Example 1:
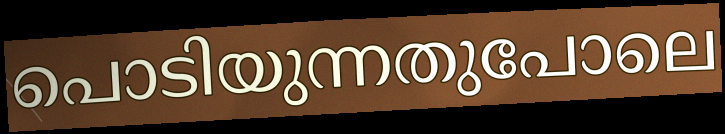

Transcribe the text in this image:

പൊടിയുന്നതുപോലെ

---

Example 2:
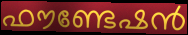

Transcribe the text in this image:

ഫൗണ്ടേഷൻ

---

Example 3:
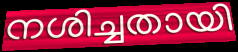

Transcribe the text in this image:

നശിച്ചതായി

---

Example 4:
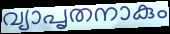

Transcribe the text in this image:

വ്യാപൃതനാകും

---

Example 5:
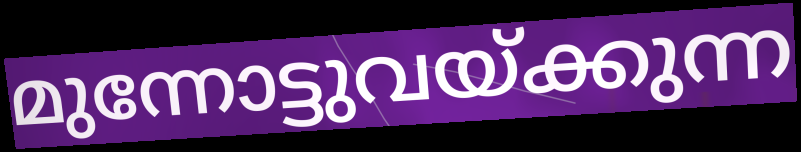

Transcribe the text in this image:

മുന്നോട്ടുവയ്ക്കുന്ന